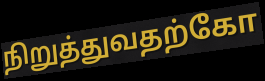
நிறுத்துவதற்கோ